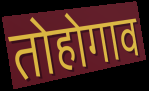
तोहोगाव